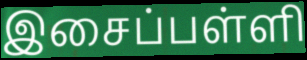
இசைப்பள்ளி